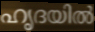
ഹൃദയിൽ